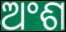
ଅଂଶ